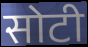
सोटी